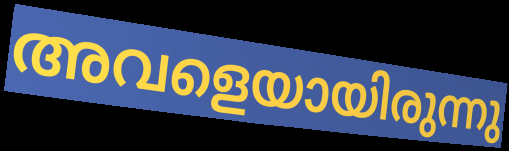
അവളെയായിരുന്നു